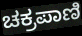
ಚಕ್ರಪಾಣಿ